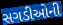
સગડીઓની